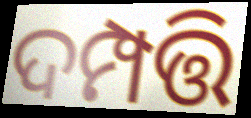
ଦମ୍ପତ୍ତି